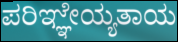
ಪರಿಞ್ಞೇಯ್ಯತಾಯ